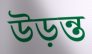
উড়ন্ত